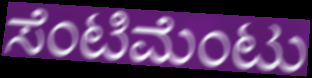
ಸೆಂಟಿಮೆಂಟು